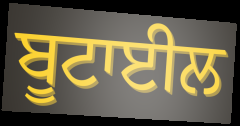
ਬੂਟਾਈਲ